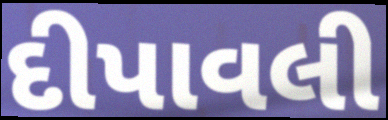
દીપાવલી